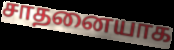
சாதனையாக